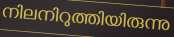
നിലനിറുത്തിയിരുന്നു